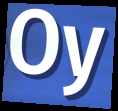
Oy